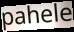
pahele